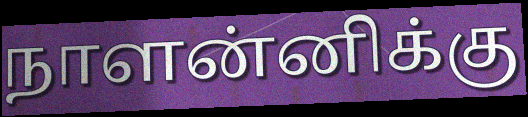
நாளன்னிக்கு